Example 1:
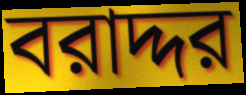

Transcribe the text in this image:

বরাদ্দর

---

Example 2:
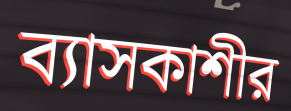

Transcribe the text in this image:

ব্যাসকাশীর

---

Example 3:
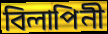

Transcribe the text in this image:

বিলাপিনী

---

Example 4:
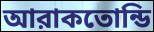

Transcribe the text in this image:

আরাকতোন্ডি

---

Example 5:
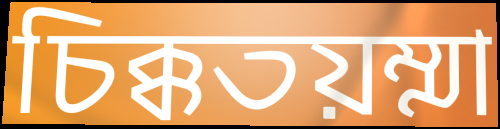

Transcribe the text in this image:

চিক্কতয়ম্মা